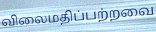
விலைமதிப்பற்றவை